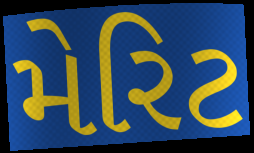
મેરિટ